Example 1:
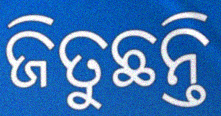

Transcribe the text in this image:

ଜିତୁଛନ୍ତି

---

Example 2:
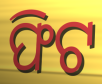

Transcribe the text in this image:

ଫିଟ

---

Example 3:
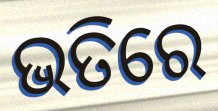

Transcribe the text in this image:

ଭତିରେ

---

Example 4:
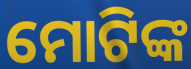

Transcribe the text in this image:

ମୋଟିଙ୍କ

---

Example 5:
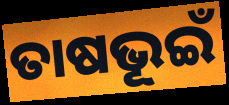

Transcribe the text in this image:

ତାଷଭୂଇଁ